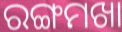
ରଙ୍ଗମଖା